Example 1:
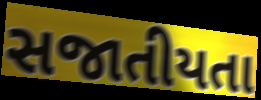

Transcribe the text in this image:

સજાતીયતા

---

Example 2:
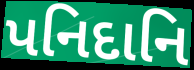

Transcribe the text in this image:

પનિદાનિ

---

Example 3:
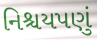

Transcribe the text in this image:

નિશ્ચયપણું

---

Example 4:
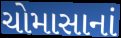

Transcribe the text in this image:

ચોમાસાનાં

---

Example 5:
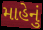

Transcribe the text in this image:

માહેનું